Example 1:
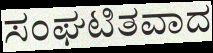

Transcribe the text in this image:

ಸಂಘಟಿತವಾದ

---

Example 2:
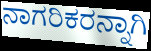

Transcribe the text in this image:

ನಾಗರಿಕರನ್ನಾಗಿ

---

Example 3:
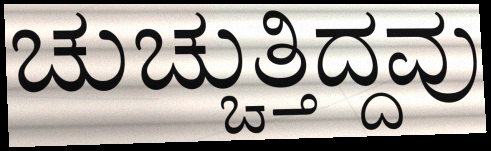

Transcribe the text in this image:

ಚುಚ್ಚುತ್ತಿದ್ದವು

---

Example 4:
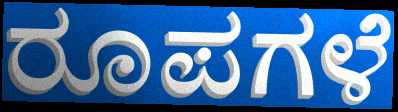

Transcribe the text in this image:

ರೂಪಗಳೆ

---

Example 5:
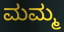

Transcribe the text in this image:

ಮಮ್ಮ